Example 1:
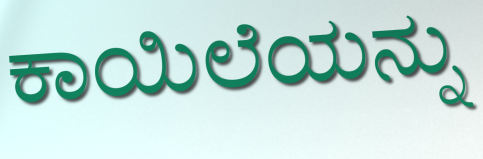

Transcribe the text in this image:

ಕಾಯಿಲೆಯನ್ನು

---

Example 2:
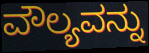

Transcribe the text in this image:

ವೌಲ್ಯವನ್ನು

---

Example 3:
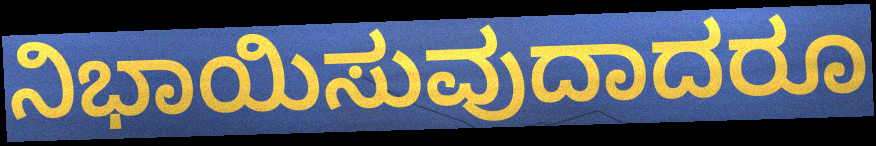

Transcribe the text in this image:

ನಿಭಾಯಿಸುವುದಾದರೂ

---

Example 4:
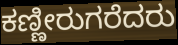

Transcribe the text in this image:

ಕಣ್ಣೀರುಗರೆದರು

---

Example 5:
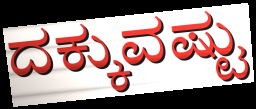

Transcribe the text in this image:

ದಕ್ಕುವಷ್ಟು